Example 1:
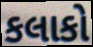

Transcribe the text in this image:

કલાકો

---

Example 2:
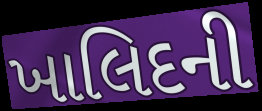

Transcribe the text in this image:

ખાલિદની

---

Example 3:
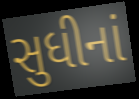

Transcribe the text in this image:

સુધીનાં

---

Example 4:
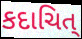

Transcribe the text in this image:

કદાચિત્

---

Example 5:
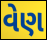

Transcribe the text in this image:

વેણ